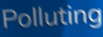
Polluting